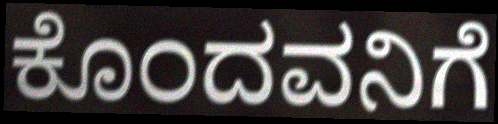
ಕೊಂದವನಿಗೆ